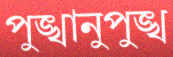
পুঙ্খানুপুঙ্খ